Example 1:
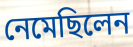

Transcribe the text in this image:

নেমেছিলেন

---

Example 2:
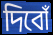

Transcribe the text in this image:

দিবোঁ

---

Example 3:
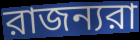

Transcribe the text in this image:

রাজন্যরা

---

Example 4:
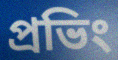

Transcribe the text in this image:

প্রভিং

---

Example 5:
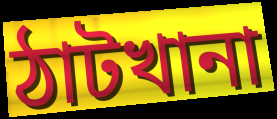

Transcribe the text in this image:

ঠাটখানা